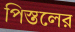
পিস্তলের